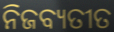
ନିଜବ୍ୟତୀତ